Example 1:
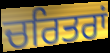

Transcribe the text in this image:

ਚਰਿਤਰਾਂ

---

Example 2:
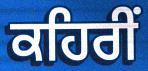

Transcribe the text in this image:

ਕਹਿਰੀਂ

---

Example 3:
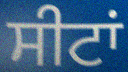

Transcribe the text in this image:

ਸੀਟਾਂ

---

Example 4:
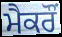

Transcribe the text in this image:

ਮੈਕਰੌਂ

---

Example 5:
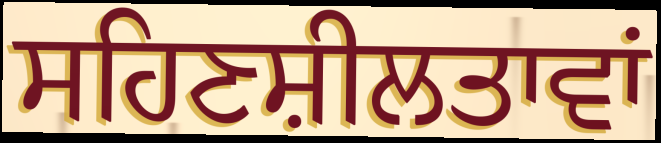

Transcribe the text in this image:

ਸਹਿਣਸ਼ੀਲਤਾਵਾਂ